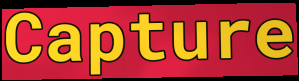
Capture